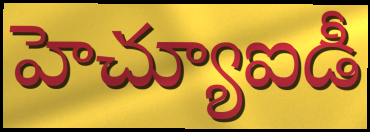
హెచ్యూఐడీ